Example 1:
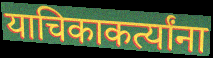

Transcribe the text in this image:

याचिकाकर्त्यांना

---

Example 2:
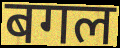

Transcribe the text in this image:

बगल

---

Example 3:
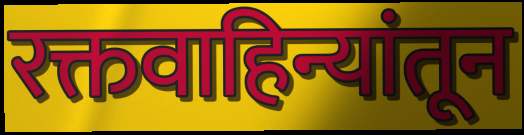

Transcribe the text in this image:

रक्तवाहिन्यांतून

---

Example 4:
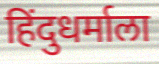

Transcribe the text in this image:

हिंदुधर्माला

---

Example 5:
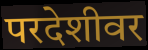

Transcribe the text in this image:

परदेशीवर